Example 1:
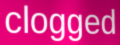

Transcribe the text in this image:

clogged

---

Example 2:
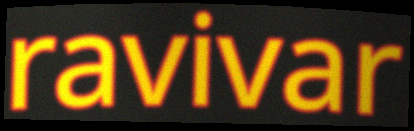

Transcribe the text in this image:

ravivar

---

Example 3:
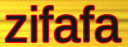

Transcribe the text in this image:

zifafa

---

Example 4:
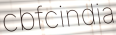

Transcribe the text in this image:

cbfcindia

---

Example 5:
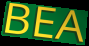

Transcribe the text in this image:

BEA